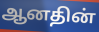
ஆனதின்